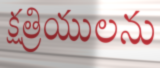
క్షత్రియులను